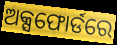
ଅକ୍ସଫୋର୍ଡରେ